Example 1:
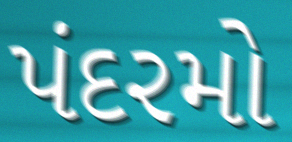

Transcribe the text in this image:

પંદરમો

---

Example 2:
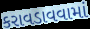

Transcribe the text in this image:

કરાવડાવવામાં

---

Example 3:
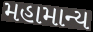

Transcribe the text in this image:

મહામાન્ય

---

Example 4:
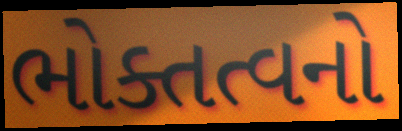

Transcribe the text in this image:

ભોક્તત્વનો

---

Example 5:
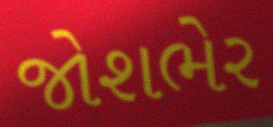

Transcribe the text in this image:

જોશભેર